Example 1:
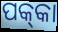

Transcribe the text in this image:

ପକ୍‍କା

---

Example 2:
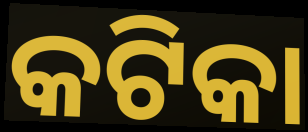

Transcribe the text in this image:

କଟିକା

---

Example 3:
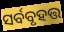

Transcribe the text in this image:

ସର୍ବବୃହତ୍ତ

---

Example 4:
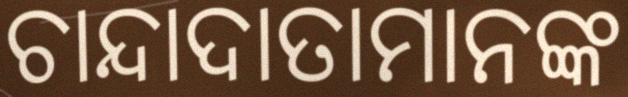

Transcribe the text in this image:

ଚାନ୍ଦାଦାତାମାନଙ୍କ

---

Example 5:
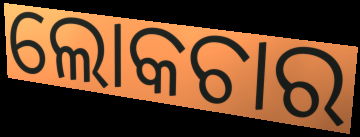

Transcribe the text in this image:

ଲୋକଚାର